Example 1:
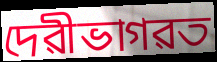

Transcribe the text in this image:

দেৱীভাগৱত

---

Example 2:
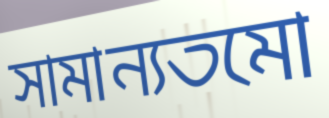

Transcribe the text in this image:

সামান্যতমো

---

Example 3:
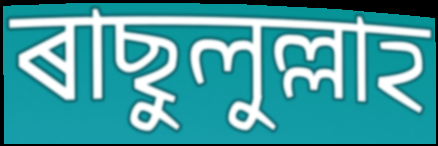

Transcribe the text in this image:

ৰাছুলুল্লাহ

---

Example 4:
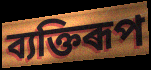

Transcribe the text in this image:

ব্যক্তিৰূপ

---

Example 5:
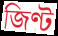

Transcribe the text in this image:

জিণ্ট